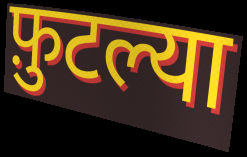
फ़ुटल्या